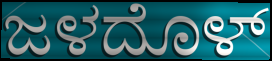
ಜಳದೊಳ್